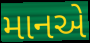
માનએ